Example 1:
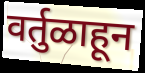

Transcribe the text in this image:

वर्तुळाहून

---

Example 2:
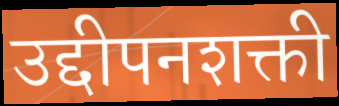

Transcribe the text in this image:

उद्दीपनशक्ती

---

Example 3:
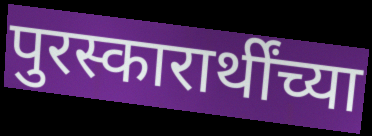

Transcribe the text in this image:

पुरस्कारार्थींच्या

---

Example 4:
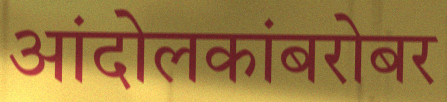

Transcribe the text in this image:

आंदोलकांबरोबर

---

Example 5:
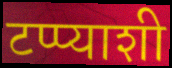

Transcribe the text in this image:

टप्प्याशी